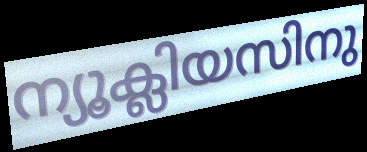
ന്യൂക്ലിയസിനു